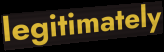
legitimately